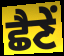
ਛੈਣੇਂ